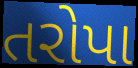
તરોપા